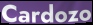
Cardozo